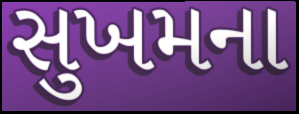
સુખમના